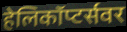
हेलिकॉप्टर्सवर